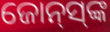
ଜୋନ୍‌ସ୍‌ଙ୍କ